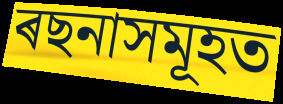
ৰছনাসমূহত